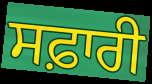
ਸਫ਼ਾਰੀ